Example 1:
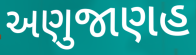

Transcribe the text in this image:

અણુજાણહ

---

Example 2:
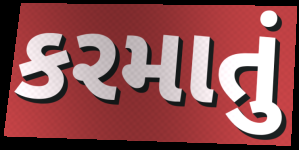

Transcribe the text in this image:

કરમાતું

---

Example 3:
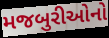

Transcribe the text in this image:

મજબુરીઓનો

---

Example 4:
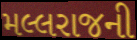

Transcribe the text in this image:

મલ્લરાજની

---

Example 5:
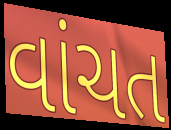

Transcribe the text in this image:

વાંચત